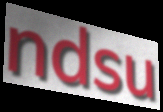
ndsu